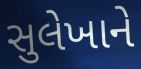
સુલેખાને